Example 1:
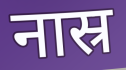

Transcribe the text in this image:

नास्र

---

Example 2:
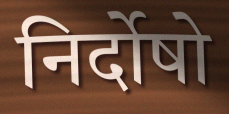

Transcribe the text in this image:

निर्दोषो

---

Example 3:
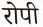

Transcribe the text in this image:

रोपी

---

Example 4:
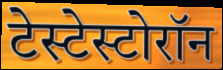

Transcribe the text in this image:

टेस्टेस्टोरॉन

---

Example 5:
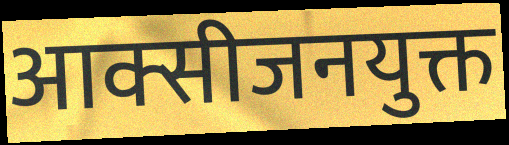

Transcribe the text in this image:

आक्सीजनयुक्त